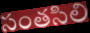
సంతసిలి